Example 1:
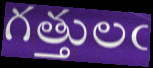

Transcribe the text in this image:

గత్తులఁ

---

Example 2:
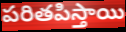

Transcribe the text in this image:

పరితపిస్తాయి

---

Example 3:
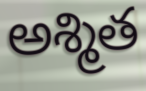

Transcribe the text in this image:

అశ్మిత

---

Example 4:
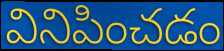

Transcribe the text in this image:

వినిపించడం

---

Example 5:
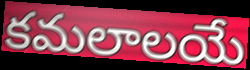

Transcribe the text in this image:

కమలాలయే